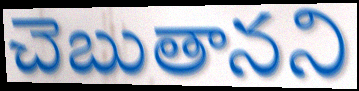
చెబుతానని